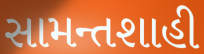
સામન્તશાહી